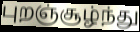
புறஞ்சூழ்ந்து